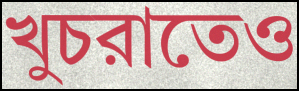
খুচরাতেও